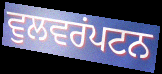
ਵੁਲਵਰਂਪਟਨ